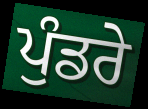
ਪੁੰਡਰੇ